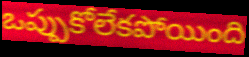
ఒప్పుకోలేకపోయింది